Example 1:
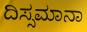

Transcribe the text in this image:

ದಿಸ್ಸಮಾನಾ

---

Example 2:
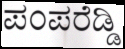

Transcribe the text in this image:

ಪಂಪರೆಡ್ಡಿ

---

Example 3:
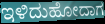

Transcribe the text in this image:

ಇಳಿದುಹೋದಾಗ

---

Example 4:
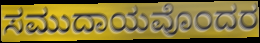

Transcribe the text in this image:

ಸಮುದಾಯವೊಂದರ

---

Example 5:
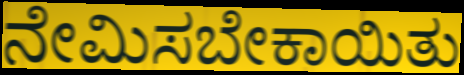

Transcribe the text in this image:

ನೇಮಿಸಬೇಕಾಯಿತು